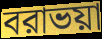
বরাভয়া